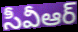
సీవీఆర్